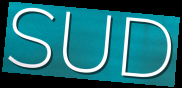
SUD